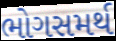
ભોગસમર્થ